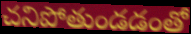
చనిపోతుండడంతో